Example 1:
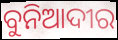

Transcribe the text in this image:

ବୁନିଆଦୀର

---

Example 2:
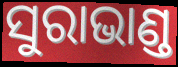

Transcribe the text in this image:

ସୁରାଭାଣ୍ଡ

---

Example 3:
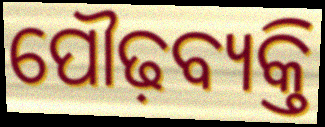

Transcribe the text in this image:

ପୌଢ଼ବ୍ୟକ୍ତି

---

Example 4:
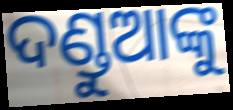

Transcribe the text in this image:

ଦଣ୍ଡୁଆଙ୍କୁ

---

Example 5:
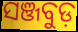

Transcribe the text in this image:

ସଞ୍ଜବୁଡ଼